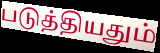
படுத்தியதும்